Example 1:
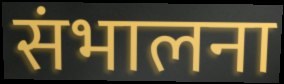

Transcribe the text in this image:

संभालना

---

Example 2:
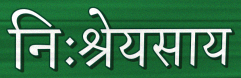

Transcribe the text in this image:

निःश्रेयसाय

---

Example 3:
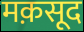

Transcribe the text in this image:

मक़सूद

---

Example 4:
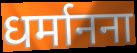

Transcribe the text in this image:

धर्मानना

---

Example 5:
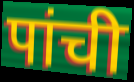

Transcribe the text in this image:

पांची